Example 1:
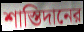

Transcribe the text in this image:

শাস্তিদানের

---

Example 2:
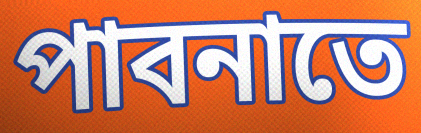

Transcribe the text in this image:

পাবনাতে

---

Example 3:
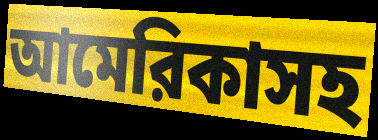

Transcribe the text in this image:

আমেরিকাসহ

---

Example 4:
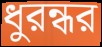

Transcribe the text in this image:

ধুরন্ধর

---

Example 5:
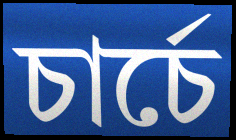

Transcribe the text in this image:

চার্চে